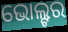
ଭୋଲ୍ଟର